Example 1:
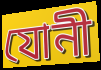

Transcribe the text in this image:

যোনী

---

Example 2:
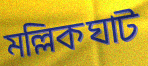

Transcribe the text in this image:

মল্লিকঘাট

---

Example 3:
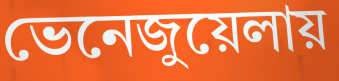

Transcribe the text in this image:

ভেনেজুয়েলায়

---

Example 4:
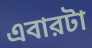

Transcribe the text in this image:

এবারটা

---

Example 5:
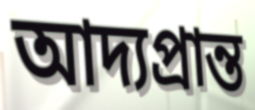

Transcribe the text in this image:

আদ্যপ্রান্ত